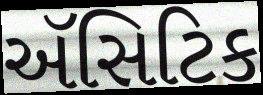
ઍસિટિક